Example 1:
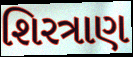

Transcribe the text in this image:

શિરત્રાણ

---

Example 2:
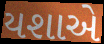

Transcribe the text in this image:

યશાએ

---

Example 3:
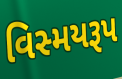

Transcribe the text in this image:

વિસ્મયરૂપ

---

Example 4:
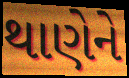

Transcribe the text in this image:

થાણેને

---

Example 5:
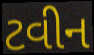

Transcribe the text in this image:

ટવીન